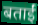
बताईं